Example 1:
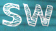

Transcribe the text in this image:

sw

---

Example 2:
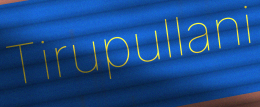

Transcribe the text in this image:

Tirupullani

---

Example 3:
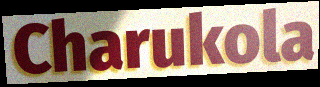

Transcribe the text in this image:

Charukola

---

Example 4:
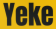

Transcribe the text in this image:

Yeke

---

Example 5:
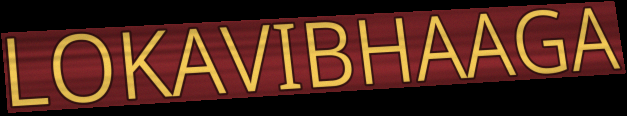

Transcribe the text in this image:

LOKAVIBHAAGA